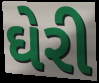
ઘેરી